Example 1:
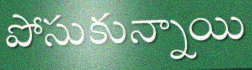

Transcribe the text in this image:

పోసుకున్నాయి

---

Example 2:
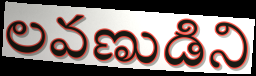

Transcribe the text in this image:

లవణుడిని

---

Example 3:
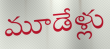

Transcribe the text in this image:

మూడేళ్లు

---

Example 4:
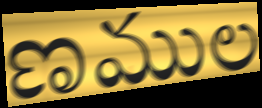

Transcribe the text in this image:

ణముల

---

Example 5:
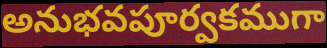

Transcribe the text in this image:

అనుభవపూర్వకముగా